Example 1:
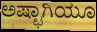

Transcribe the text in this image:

ಅಷ್ಟಾಗಿಯೂ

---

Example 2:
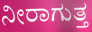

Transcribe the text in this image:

ನೀರಾಗುತ್ತ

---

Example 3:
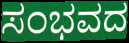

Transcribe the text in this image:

ಸಂಭವದ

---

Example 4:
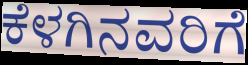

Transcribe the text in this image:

ಕೆಳಗಿನವರಿಗೆ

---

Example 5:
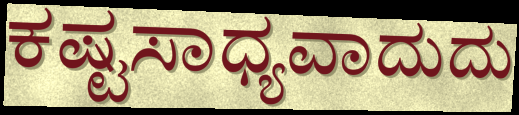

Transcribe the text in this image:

ಕಷ್ಟಸಾಧ್ಯವಾದುದು